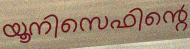
യൂനിസെഫിന്റെ